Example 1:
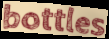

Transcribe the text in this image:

bottles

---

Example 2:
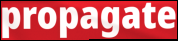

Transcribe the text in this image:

propagate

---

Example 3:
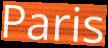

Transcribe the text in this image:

Paris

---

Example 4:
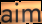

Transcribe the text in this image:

aim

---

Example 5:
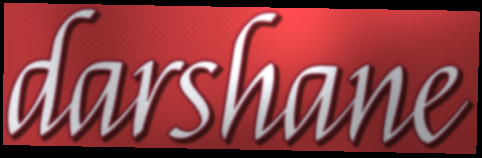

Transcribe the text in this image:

darshane